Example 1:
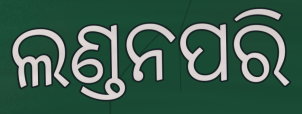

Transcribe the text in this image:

ଲଣ୍ଡନପରି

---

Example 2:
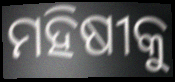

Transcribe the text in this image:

ମହିଷୀକୁ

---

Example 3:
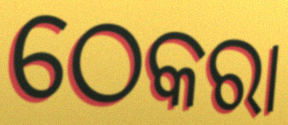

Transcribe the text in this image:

ଠେକରା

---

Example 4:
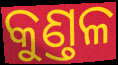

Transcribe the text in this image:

କୁଣ୍ତଳ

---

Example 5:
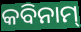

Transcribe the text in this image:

କବିନାମ୍